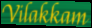
Vilakkam